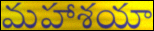
మహాశయా